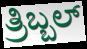
ತ್ರಿಬ್ಬಲ್